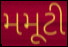
મમૂટી